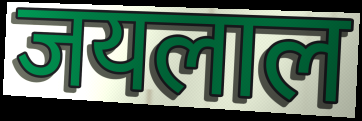
जयलाल